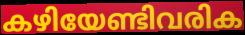
കഴിയേണ്ടിവരിക